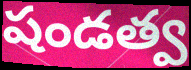
షండత్వ